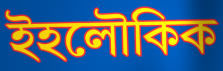
ইহলৌকিক